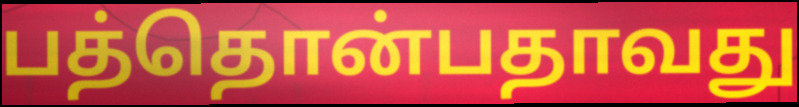
பத்தொன்பதாவது